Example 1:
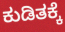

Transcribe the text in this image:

ಕುಡಿತಕ್ಕೆ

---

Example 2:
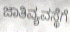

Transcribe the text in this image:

ಜಾತಿವ್ಯವಸ್ಥೆಗೆ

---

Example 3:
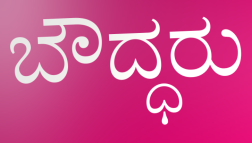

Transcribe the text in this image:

ಬೌದ್ಧರು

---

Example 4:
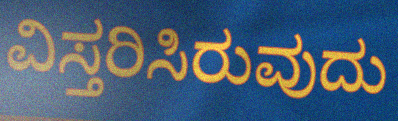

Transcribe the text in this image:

ವಿಸ್ತರಿಸಿರುವುದು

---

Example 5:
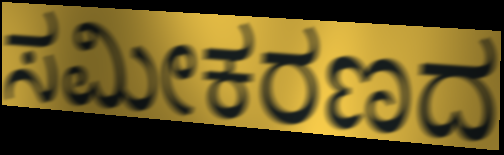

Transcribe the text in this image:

ಸಮೀಕರಣದ